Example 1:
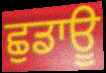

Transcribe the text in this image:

ਛੁਡਾਊ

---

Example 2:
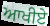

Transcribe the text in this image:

ਆਖੀਏ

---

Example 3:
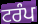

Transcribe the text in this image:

ਟਰੰਪ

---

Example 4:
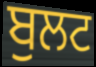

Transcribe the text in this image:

ਬੁਲਟ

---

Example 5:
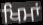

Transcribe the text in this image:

ਖਿਮਾਂ